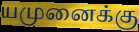
யமுனைக்கு